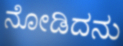
ನೋಡಿದನು